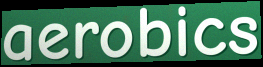
aerobics